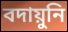
বদায়ুনি